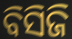
ବିସିଜି